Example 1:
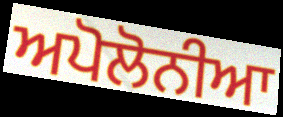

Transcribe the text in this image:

ਅਪੋਲੋਨੀਆ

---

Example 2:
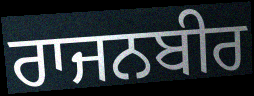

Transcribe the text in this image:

ਰਾਜਨਬੀਰ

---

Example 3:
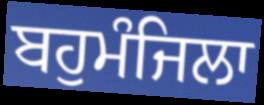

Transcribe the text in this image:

ਬਹੁਮੰਜਿਲਾ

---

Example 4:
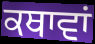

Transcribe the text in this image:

ਕਥਾਵਾਂ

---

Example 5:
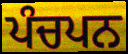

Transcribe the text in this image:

ਪੰਚਪਨ